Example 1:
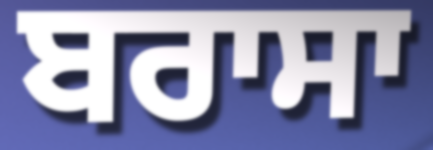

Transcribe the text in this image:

ਬਰਾਸਾ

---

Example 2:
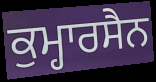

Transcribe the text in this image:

ਕੁਮ੍ਹਾਰਸੈਨ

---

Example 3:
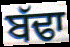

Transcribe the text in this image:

ਬੱਢਾ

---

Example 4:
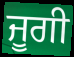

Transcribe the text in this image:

ਜੂਗੀ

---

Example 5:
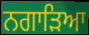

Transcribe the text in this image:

ਨਗਾੜਿਆ